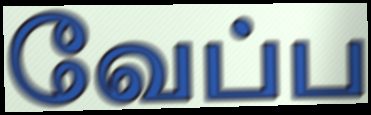
வேப்ப